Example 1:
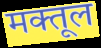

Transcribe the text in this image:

मक्तूल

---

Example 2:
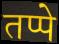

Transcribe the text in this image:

तप्पे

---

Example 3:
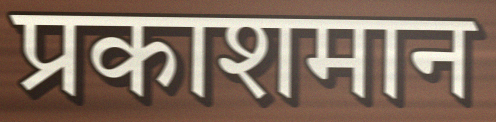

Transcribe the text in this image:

प्रकाशमान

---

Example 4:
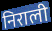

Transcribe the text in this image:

निराली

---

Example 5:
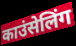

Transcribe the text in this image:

काउंसेलिंग